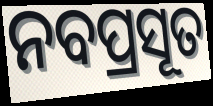
ନବପ୍ରସୂତ